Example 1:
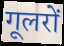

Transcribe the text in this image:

गूलरों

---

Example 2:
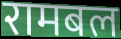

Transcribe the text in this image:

रामबल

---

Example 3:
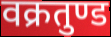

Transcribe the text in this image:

वक्रतुण्ड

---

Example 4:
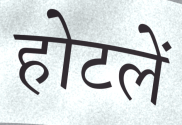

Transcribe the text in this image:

होटलें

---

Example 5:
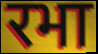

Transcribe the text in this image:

रभा